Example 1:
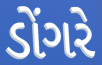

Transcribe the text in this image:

ડોંગરે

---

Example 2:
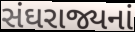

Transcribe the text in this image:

સંઘરાજ્યનાં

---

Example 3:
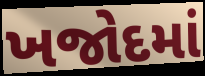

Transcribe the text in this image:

ખજોદમાં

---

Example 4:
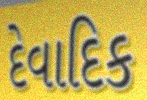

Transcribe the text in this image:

દેવાદિક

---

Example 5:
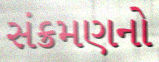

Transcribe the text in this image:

સંક્રમણનો